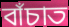
বাঁচাত